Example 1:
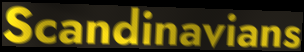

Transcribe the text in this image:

Scandinavians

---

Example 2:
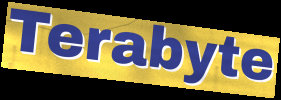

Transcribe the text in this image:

Terabyte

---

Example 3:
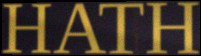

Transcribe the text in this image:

HATH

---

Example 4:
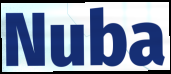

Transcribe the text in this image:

Nuba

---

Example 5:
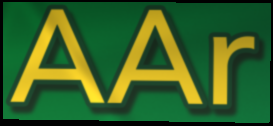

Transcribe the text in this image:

AAr